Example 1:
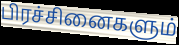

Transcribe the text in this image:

பிரச்சினைகளும்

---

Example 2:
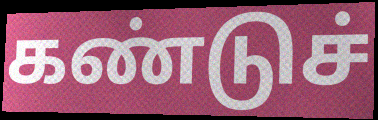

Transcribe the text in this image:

கண்டுச்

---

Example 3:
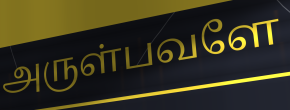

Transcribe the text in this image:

அருள்பவளே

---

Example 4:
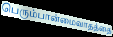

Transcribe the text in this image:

பெரும்பான்மைவாதத்தை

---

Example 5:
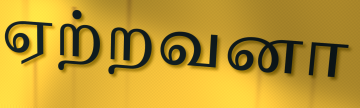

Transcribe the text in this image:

ஏற்றவனா